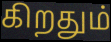
கிறதும்